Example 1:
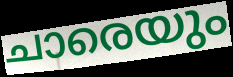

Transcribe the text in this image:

ചാരെയും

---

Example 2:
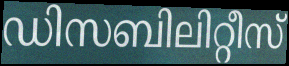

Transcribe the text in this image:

ഡിസബിലിറ്റീസ്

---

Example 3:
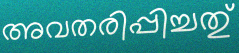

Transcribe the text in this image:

അവതരിപ്പിച്ചതു്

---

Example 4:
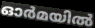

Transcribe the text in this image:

ഓർമയിൽ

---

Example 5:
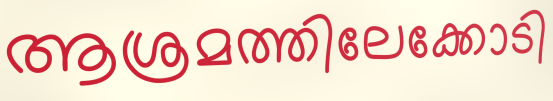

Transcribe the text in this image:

ആശ്രമത്തിലേക്കോടി